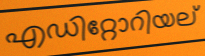
എഡിറ്റോറിയല്